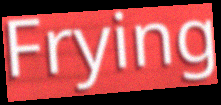
Frying